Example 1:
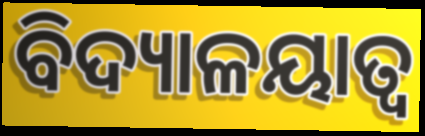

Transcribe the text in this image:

ବିଦ୍ୟାଳୟାତ୍ବ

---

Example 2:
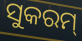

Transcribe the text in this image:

ସୁକରମ୍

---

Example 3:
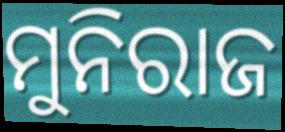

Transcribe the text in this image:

ମୁନିରାଜ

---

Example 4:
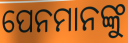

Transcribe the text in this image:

ପେନମାନଙ୍କୁ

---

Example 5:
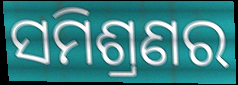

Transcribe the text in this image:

ସମିଶ୍ରଣର